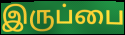
இருப்பை